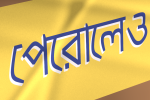
পেরোলেও